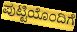
ಪುಟ್ಟಿಯೊಂದಿಗೆ